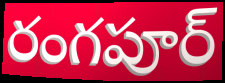
రంగపూర్